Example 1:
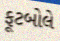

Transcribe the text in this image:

ફૂટબોલે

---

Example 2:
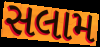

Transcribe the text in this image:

સલામ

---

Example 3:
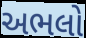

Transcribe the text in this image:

અભલો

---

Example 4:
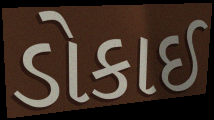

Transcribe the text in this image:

ડોકાઈ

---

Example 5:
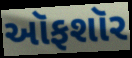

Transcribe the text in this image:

ઑફશૉર